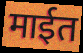
माईत